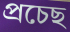
প্ৰচেছ